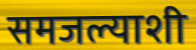
समजल्याशी